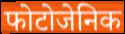
फोटोजेनिक